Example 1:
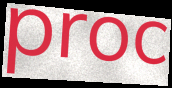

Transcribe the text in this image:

proc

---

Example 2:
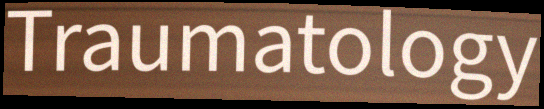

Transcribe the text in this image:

Traumatology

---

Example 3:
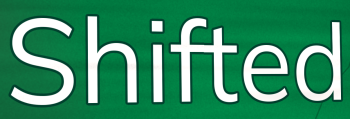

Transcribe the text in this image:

Shifted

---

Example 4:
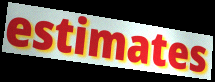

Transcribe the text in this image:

estimates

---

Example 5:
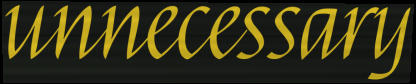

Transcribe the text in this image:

unnecessary